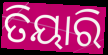
ତିୟାରି